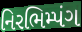
નિરભિમ્પંગ